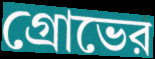
গ্রোভের